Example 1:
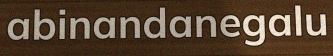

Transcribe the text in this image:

abinandanegalu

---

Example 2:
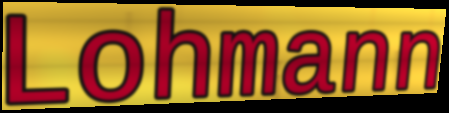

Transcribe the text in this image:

Lohmann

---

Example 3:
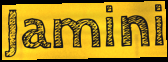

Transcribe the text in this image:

Jamini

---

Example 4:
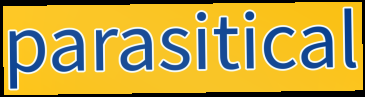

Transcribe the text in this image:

parasitical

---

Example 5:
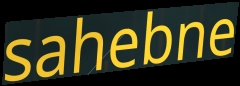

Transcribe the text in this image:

sahebne